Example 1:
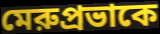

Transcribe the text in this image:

মেরুপ্রভাকে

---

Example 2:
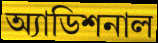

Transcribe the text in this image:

অ্যাডিশনাল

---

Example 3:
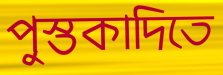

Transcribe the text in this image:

পুস্তকাদিতে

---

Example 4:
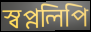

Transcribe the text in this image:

স্বপ্নলিপি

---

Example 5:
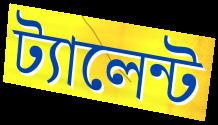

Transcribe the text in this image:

ট্যালেন্ট